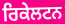
ਰਿਕੇਲਟਨ